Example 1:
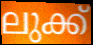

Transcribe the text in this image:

ലുക്ക്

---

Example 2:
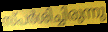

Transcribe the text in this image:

സ്പർശിച്ചിരുന്നു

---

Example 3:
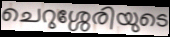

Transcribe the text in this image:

ചെറുശ്ശേരിയുടെ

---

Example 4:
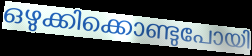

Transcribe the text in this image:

ഒഴുക്കിക്കൊണ്ടുപോയി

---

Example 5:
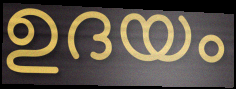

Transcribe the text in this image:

ഉദയം